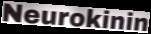
Neurokinin